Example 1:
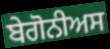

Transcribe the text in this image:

ਬੇਗੋਨੀਅਸ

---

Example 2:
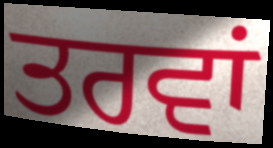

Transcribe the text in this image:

ਤਰਵਾਂ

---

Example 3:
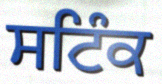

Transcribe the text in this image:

ਸਟਿੰਕ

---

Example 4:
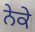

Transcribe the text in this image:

ਨੇਕੇ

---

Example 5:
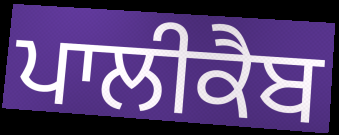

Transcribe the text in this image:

ਪਾਲੀਕੈਬ